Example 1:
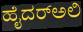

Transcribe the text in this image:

ಹೈದರ್‌ಅಲಿ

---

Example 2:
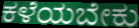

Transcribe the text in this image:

ಕಳೆಯಬೇಕು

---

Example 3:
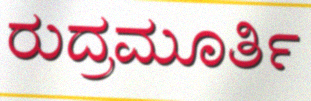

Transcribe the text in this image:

ರುದ್ರಮೂರ್ತಿ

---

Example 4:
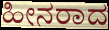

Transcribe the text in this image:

ಹೀನರಾದ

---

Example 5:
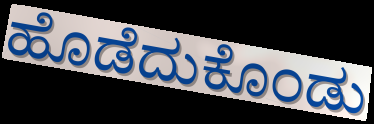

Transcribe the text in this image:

ಹೊಡೆದುಕೊಂಡು